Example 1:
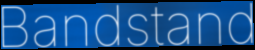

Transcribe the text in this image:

Bandstand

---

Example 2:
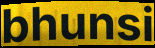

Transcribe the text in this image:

bhunsi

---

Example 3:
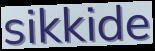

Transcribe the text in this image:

sikkide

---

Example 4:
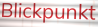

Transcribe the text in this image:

Blickpunkt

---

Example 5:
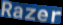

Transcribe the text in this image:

Razer